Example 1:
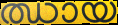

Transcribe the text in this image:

ഝായ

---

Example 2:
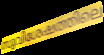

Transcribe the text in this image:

സുവിശേഷത്തിലെ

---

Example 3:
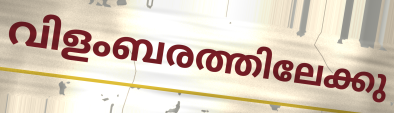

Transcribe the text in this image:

വിളംബരത്തിലേക്കു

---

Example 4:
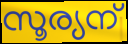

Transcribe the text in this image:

സൂര്യന്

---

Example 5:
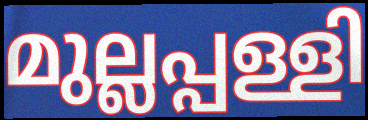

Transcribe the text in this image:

മുല്ലപ്പള്ളി